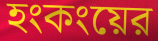
হংকংয়ের